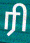
ரி